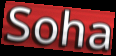
Soha